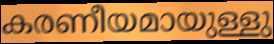
കരണീയമായുള്ളു